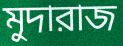
মুদারাজ